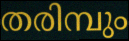
തരിമ്പും